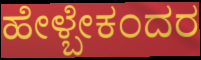
ಹೇಳ್ಬೇಕಂದರ